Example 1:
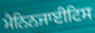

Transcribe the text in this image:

ਮੈਨਿਨਜਾਈਟਿਸ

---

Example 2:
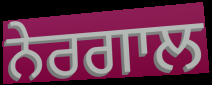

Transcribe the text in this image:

ਨੇਰਗਾਲ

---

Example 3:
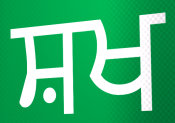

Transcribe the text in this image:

ਸ਼ਖ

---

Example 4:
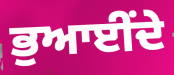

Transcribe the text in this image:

ਭੁਆਈਂਦੇ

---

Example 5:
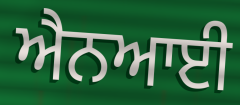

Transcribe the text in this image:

ਐਨਆਈ